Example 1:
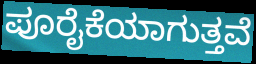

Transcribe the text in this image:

ಪೂರೈಕೆಯಾಗುತ್ತವೆ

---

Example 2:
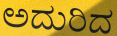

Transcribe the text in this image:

ಅದುರಿದ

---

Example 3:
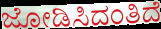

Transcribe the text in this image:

ಜೋಡಿಸಿದಂತಿದೆ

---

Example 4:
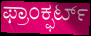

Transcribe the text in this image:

ಫ್ರಾಂಕ್ಫರ್ಟ್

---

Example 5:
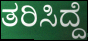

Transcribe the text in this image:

ತರಿಸಿದ್ದೆ